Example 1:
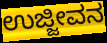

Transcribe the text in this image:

ಉಜ್ಜೀವನ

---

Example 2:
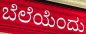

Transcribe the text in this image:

ಬೆಲೆಯೆಂದು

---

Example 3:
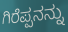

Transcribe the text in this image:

ಗಿರೆಪ್ಪನನ್ನು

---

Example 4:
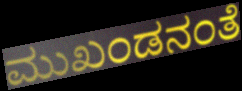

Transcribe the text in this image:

ಮುಖಂಡನಂತೆ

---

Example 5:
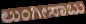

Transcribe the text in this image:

ಲುಂಗೀಸಾಬು